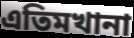
এতিমখানা